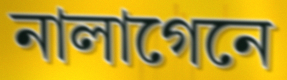
নালাগেনে